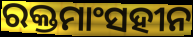
ରକ୍ତମାଂସହୀନ